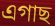
এগাছ